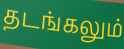
தடங்கலும்